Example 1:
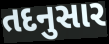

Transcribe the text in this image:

તદનુસાર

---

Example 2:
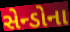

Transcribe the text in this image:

સેન્ડોના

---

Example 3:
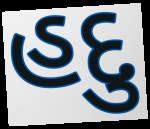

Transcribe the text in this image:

હદુ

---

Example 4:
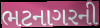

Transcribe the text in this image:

ભટનાગરની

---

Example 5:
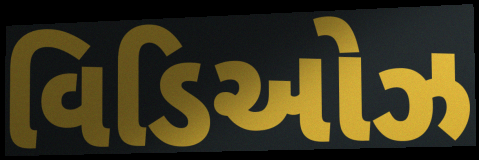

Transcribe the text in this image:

વિડિઓઝ